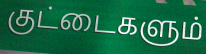
குட்டைகளும்